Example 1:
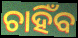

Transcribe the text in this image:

ଚାହିଁବ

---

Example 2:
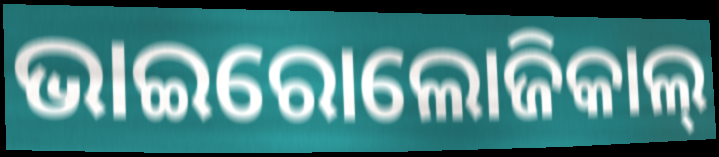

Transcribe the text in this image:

ଭାଇରୋଲୋଜିକାଲ୍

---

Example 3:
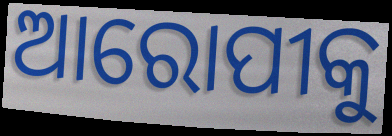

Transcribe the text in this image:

ଆରୋପୀକୁ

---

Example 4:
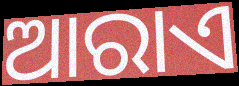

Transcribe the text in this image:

ଆରାଏ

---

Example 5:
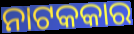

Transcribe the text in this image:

ନାଟକକାର